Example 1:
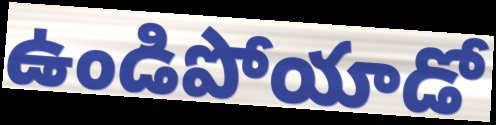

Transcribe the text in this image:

ఉండిపోయాడో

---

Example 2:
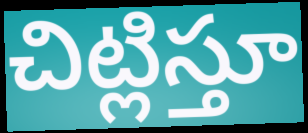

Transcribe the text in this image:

చిట్లిస్తూ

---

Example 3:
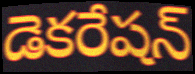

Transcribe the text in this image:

డెకరేషన్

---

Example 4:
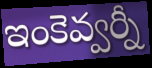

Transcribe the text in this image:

ఇంకెవ్వర్నీ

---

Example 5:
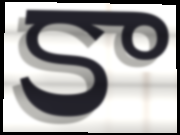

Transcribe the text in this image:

కా